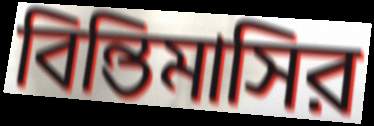
বিন্তিমাসির